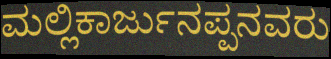
ಮಲ್ಲಿಕಾರ್ಜುನಪ್ಪನವರು